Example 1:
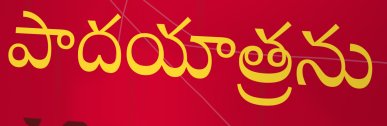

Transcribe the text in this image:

పాదయాత్రను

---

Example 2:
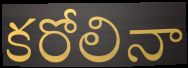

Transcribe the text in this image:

కరోలినా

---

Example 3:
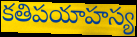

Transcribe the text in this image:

కతిపయాహస్య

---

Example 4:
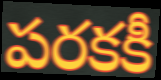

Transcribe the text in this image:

పరకకీ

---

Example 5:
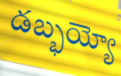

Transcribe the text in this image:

డబ్భయ్యో